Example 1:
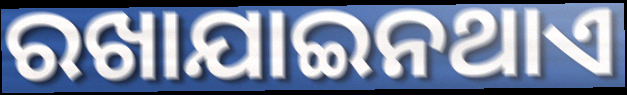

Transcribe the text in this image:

ରଖାଯାଇନଥାଏ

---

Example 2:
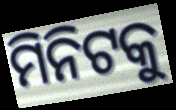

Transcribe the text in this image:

ମିନିଟକୁ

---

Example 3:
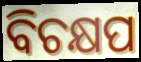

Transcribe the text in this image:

ବିଚକ୍ଷପ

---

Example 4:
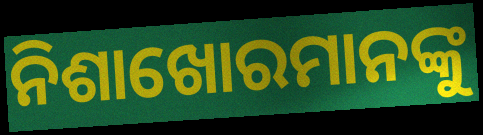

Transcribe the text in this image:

ନିଶାଖୋରମାନଙ୍କୁ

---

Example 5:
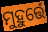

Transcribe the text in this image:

ମୁହୁର୍ତ୍ତେ